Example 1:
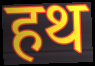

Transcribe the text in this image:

हथ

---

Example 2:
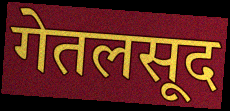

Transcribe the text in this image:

गेतलसूद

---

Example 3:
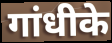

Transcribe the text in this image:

गांधीके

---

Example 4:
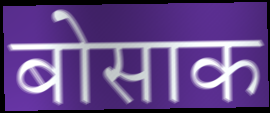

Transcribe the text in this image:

बोसाक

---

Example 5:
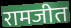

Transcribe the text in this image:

रामजीत